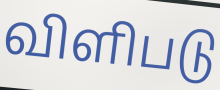
விளிபடு